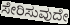
ಸೇರಿಸುವುದೇ